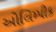
ઓલિમ્પીક